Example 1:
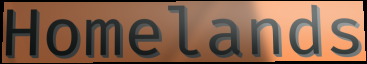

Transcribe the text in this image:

Homelands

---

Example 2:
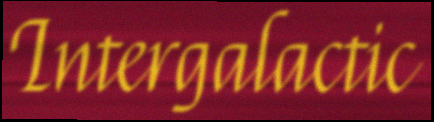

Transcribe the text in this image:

Intergalactic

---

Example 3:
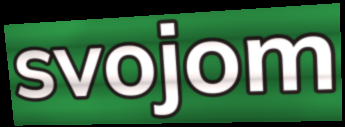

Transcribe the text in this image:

svojom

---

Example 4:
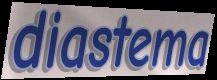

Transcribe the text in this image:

diastema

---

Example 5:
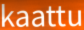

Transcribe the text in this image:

kaattu